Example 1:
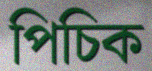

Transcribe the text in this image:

পিচিক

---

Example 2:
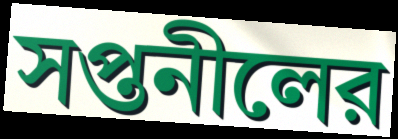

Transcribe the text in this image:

সপ্তনীলের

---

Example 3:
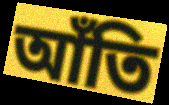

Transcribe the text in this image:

আঁতি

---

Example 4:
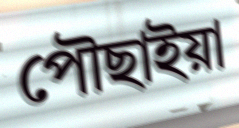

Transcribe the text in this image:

পৌছাইয়া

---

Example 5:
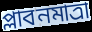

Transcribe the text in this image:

প্লাবনমাত্রা